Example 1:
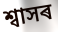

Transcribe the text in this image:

শ্বাসৰ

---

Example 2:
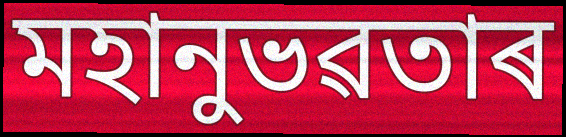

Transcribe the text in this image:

মহানুভৱতাৰ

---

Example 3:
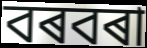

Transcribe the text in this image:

বৰবৰা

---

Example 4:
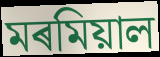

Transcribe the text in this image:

মৰমিয়াল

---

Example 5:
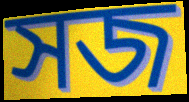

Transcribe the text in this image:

সজ